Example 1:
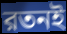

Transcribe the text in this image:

রতনই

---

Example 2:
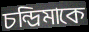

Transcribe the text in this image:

চন্দ্রিমাকে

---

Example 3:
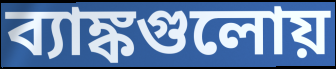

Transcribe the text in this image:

ব্যাঙ্কগুলোয়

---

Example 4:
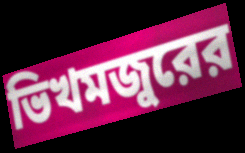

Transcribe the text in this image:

ভিখমজুরের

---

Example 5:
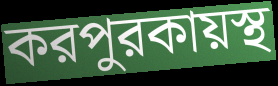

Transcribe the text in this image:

করপুরকায়স্থ